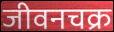
जीवनचक्र